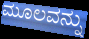
ಮೂಲವನ್ನು